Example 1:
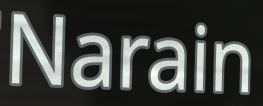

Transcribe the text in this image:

Narain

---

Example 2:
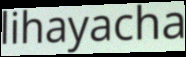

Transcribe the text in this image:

lihayacha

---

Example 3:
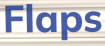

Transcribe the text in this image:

Flaps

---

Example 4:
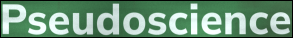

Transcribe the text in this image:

Pseudoscience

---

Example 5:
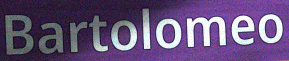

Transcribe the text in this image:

Bartolomeo